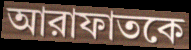
আরাফাতকে